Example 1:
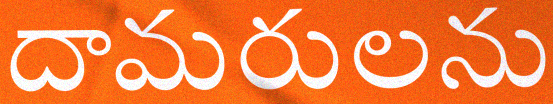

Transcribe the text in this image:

దామరులను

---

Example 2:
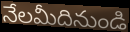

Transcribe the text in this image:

నేలమీదినుండి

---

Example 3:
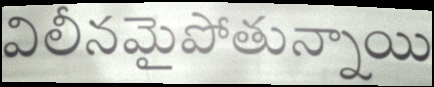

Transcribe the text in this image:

విలీనమైపోతున్నాయి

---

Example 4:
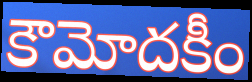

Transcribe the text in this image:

కౌమోదకీం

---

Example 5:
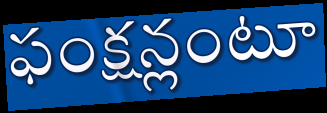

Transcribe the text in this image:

ఫంక్షన్లంటూ